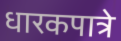
धारकपात्रे